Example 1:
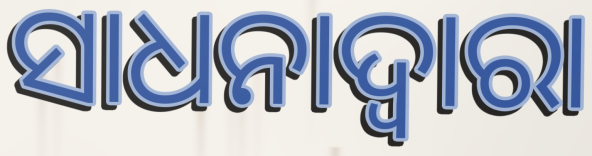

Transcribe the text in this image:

ସାଧନାଦ୍ଵାରା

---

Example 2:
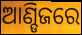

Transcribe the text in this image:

ଆଣ୍ଡିଜରେ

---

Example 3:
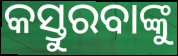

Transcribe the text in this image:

କସ୍ତୁରବାଙ୍କୁ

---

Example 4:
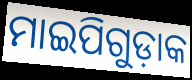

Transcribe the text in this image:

ମାଇପିଗୁଡ଼ାକ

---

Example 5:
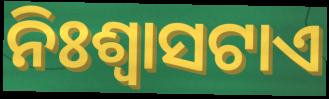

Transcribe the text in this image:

ନିଃଶ୍ଵାସଟାଏ